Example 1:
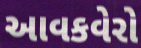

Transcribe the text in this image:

આવકવેરો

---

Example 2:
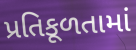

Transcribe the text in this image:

પ્રતિકૂળતામાં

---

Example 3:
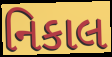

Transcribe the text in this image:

નિકાલ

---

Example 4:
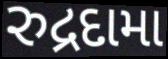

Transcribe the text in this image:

રુદ્રદામા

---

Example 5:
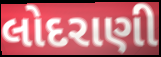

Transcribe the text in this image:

લોદરાણી